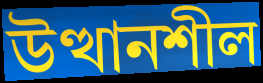
উত্থানশীল